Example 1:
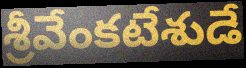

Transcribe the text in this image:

శ్రీవేంకటేశుడే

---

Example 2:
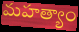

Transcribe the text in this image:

మహత్యాం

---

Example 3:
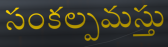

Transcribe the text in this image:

సంకల్పమస్తు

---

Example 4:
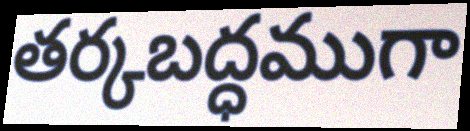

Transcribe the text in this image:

తర్కబద్ధముగా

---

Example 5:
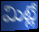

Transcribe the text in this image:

మిట్లే